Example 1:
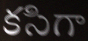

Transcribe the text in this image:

కసిగా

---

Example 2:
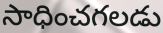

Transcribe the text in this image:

సాధించగలడు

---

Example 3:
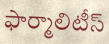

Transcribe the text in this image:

ఫార్మాలిటీస్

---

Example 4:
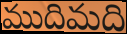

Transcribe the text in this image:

ముదిమది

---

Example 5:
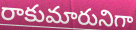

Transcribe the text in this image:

రాకుమారునిగా